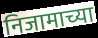
निजामाच्या